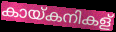
കായ്കനികള്